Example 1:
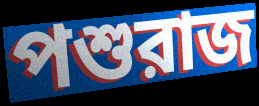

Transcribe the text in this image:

পশুরাজ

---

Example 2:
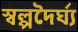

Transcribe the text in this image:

স্বল্পদৈর্ঘ্য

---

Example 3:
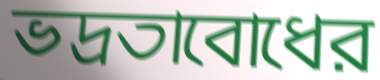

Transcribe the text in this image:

ভদ্রতাবোধের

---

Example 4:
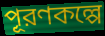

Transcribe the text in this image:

পূরণকল্পে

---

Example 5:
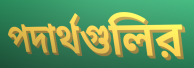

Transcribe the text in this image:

পদার্থগুলির